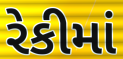
રેકીમાં